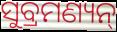
ସୁବ୍ରମଣ୍ୟନ୍